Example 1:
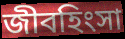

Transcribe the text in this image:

জীবহিংসা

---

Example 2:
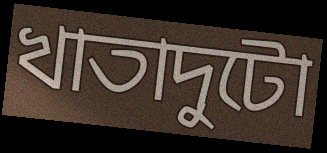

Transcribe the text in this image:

খাতাদুটো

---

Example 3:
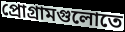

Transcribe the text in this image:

প্রোগ্রামগুলোতে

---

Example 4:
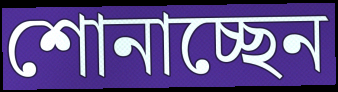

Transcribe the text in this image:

শোনাচ্ছেন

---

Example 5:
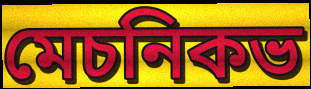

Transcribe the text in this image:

মেচনিকভ